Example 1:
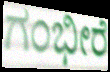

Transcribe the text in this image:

ಗಂಭೀರೆ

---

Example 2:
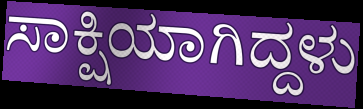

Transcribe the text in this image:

ಸಾಕ್ಷಿಯಾಗಿದ್ದಳು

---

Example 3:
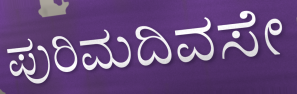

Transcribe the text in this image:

ಪುರಿಮದಿವಸೇ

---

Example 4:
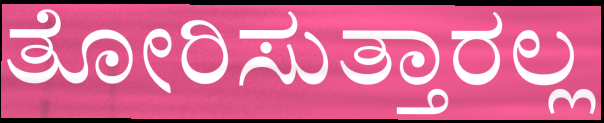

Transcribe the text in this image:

ತೋರಿಸುತ್ತಾರಲ್ಲ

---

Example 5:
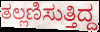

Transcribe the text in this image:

ತಲ್ಲಣಿಸುತ್ತಿದ್ದ